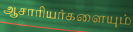
ஆசாரியர்களையும்